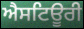
ਐਸਟਿਊਰੀ